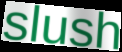
slush